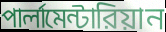
পার্লামেন্টারিয়ান